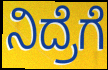
ನಿದ್ರೆಗೆ